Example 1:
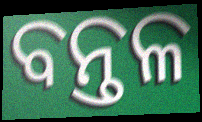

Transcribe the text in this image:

ବନ୍ତଳ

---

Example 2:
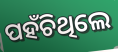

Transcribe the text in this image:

ପହଁଚିଥିଲେ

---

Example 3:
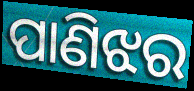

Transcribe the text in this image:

ପାଣିଝର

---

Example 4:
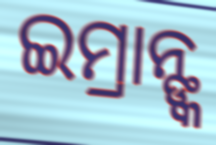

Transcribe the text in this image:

ଇମ୍ରାନ୍ଙ୍କ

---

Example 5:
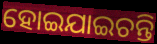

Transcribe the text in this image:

ହୋଇଯାଇଚନ୍ତି